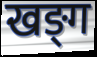
खङ्ग